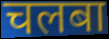
चलबा